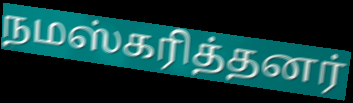
நமஸ்கரித்தனர்